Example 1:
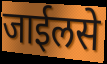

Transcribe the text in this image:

जाईलसे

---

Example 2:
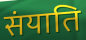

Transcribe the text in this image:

संयाति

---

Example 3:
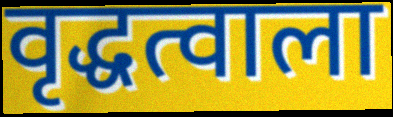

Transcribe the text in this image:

वृद्धत्वाला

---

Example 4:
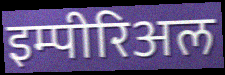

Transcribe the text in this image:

इम्पीरिअल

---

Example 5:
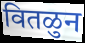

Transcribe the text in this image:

वितळुन